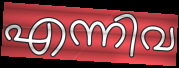
എന്നിവ